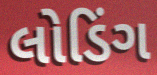
લોડિંગ